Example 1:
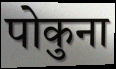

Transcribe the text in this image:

पोकुना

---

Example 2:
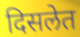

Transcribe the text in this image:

दिसलेत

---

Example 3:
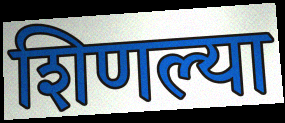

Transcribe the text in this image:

शिणल्या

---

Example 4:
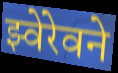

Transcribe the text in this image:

झ्वेरेवने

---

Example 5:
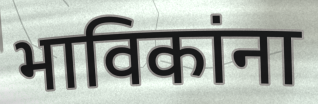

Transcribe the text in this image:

भाविकांना